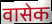
वासेक